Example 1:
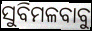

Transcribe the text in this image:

ସୁବିମଳବାବୁ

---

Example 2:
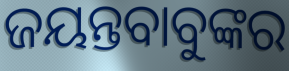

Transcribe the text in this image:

ଜୟନ୍ତବାବୁଙ୍କର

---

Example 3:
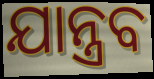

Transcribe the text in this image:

ଯାନ୍ତ୍ରବ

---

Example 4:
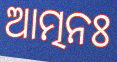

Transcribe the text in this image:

ଆତ୍ମନଃ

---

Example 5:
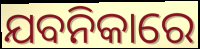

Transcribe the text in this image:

ଯବନିକାରେ